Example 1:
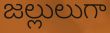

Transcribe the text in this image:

జల్లులుగా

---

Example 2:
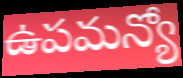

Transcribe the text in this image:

ఉపమన్యో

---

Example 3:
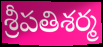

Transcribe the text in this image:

శ్రీపతిశర్మ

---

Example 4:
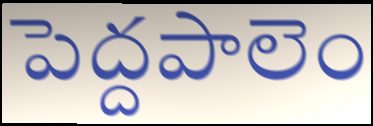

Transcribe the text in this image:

పెద్దపాలెం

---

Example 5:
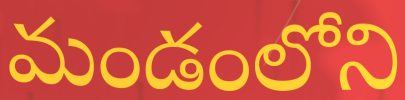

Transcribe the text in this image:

మండంలోని